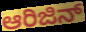
ಆರಿಜಿನ್